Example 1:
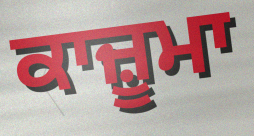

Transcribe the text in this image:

ਕਾਜ਼ੂਮਾ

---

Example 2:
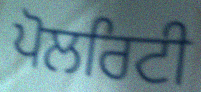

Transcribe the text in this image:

ਪੋਲਰਿਟੀ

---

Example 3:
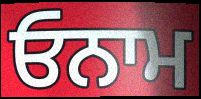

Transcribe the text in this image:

ਓਨਾਮ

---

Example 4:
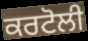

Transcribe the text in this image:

ਕਰਟੋਲੀ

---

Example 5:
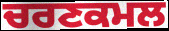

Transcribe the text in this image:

ਚਰਣਕਮਲ